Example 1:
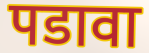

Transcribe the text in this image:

पडावा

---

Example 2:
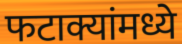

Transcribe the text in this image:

फटाक्यांमध्ये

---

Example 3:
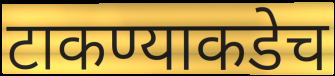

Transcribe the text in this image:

टाकण्याकडेच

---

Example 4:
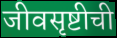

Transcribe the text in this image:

जीवसृष्टीची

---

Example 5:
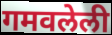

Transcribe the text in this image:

गमवलेली